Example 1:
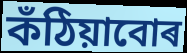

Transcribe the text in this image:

কঁঠিয়াবোৰ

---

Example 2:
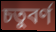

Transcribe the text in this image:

চতুবৰ্ণ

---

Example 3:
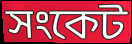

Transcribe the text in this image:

সংকেট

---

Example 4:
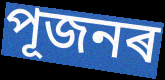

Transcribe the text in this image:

পূজনৰ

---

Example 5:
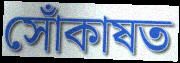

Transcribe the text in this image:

সোঁকাষত